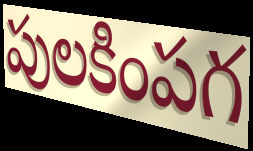
పులకింపగ